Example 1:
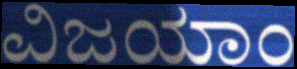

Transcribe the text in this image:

ವಿಜಯಾಂ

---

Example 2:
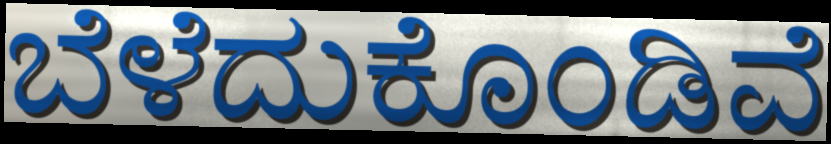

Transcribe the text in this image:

ಬೆಳೆದುಕೊಂಡಿವೆ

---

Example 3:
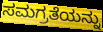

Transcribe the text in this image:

ಸಮಗ್ರತೆಯನ್ನು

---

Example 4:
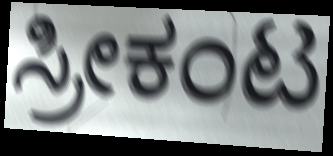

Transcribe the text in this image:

ಸ್ರೀಕಂಟ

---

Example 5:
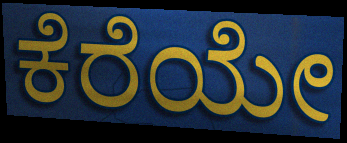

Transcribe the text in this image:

ಕೆರೆಯೇ